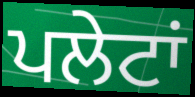
ਪਲੇਟਾਂ